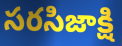
సరసిజాక్షి